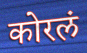
कोरलं